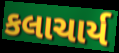
કલાચાર્ય